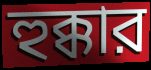
হুক্কার